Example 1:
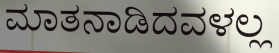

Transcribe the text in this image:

ಮಾತನಾಡಿದವಳಲ್ಲ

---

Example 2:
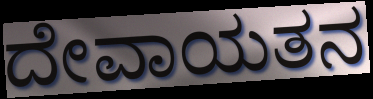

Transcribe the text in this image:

ದೇವಾಯತನ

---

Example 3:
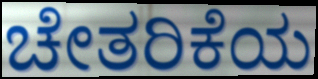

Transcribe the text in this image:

ಚೇತರಿಕೆಯ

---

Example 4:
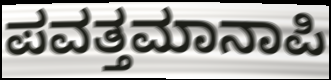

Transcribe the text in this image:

ಪವತ್ತಮಾನಾಪಿ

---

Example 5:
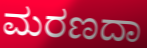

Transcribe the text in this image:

ಮರಣದಾ